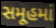
સમૂહમાં